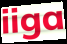
iiga